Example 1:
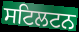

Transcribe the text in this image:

ਸਟਿਲਟਨ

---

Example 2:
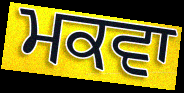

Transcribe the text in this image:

ਮਕਵਾ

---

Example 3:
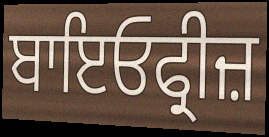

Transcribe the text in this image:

ਬਾਇਓਫ੍ਰੀਜ਼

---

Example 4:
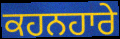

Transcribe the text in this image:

ਕਹਨਹਾਰੇ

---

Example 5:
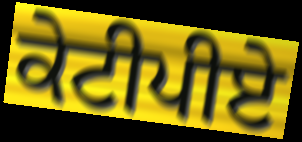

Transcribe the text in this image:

ਕੇਟੀਪੀਏ